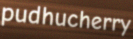
pudhucherry